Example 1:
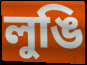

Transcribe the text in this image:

লুঙি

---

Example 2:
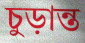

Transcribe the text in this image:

চুড়ান্ত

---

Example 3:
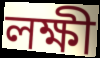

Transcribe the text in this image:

লক্ষী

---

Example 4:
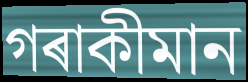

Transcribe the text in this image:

গৰাকীমান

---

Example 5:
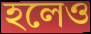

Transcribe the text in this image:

হলেও